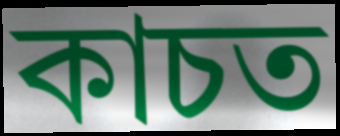
কাচত